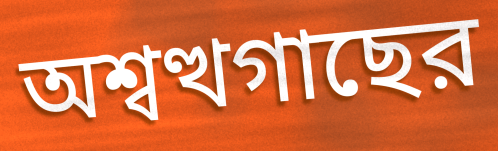
অশ্বত্থগাছের